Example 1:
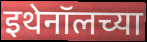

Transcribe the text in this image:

इथेनॉलच्या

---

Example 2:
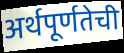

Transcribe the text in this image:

अर्थपूर्णतेची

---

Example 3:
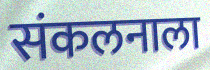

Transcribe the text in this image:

संकलनाला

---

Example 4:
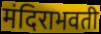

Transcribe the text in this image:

मंदिराभवती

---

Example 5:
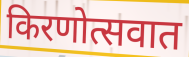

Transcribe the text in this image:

किरणोत्सवात